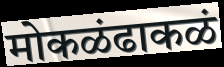
मोकळंढाकळं